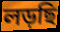
লড়ছি